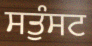
ਸਤੁੰਸਟ